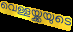
വെള്ളയ്ക്കയുടെ